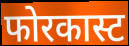
फोरकास्ट